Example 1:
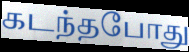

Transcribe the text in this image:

கடந்தபோது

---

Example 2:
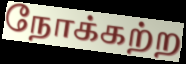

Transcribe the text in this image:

நோக்கற்ற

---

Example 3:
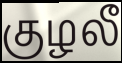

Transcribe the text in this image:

குழலீ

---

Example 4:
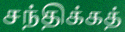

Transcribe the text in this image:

சந்திக்கத்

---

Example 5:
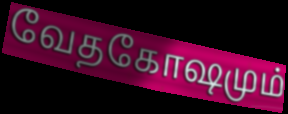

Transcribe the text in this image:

வேதகோஷமும்